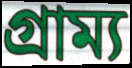
গ্রাম্য